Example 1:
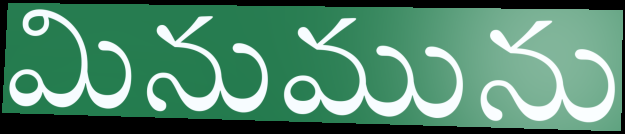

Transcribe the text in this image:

మినుమును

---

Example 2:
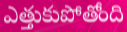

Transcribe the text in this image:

ఎత్తుకుపోతోంది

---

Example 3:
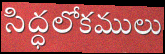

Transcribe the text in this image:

సిద్ధలోకములు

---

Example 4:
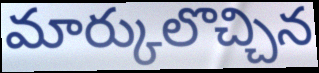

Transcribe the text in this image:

మార్కులొచ్చిన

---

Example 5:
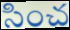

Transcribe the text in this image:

సించ